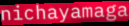
nichayamaga